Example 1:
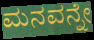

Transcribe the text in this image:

ಮನವನ್ನೇ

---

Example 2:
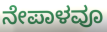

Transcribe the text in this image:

ನೇಪಾಳವೂ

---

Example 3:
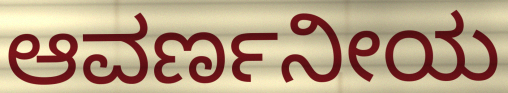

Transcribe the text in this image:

ಆವರ್ಣನೀಯ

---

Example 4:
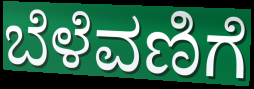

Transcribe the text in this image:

ಬೆಳೆವಣಿಗೆ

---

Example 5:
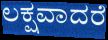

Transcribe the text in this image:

ಲಕ್ಷವಾದರೆ